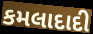
કમલાદાદી